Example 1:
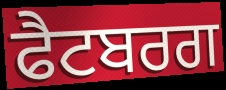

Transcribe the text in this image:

ਫੈਟਬਰਗ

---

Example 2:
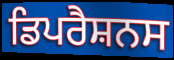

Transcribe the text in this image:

ਡਿਪਰੈਸ਼ਨਸ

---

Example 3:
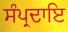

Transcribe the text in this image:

ਸੰਪ੍ਰਦਾਇ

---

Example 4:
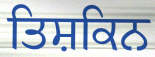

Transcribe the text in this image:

ਤਿਸ਼ਕਿਨ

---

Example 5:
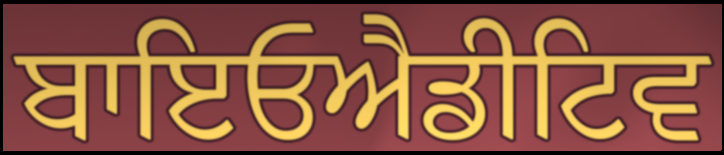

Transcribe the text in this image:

ਬਾਇਓਐਡੀਟਿਵ